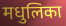
मधुलिका